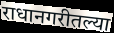
राधानगरीतल्या